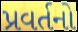
પ્રવર્તનો